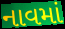
નાવમાં